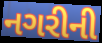
નગરીની